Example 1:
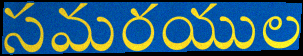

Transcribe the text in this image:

సమరయుల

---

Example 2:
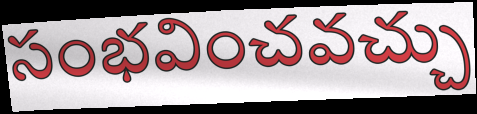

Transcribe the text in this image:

సంభవించవచ్చు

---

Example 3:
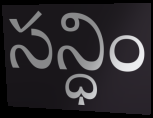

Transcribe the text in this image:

సన్ధిం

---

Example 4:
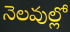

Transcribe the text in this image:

నెలవుల్లో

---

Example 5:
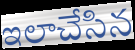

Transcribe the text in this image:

ఇలాచేసిన